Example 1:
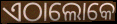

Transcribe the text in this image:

ଏଠାଲୋକେ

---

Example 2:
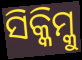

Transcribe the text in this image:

ସିକ୍କିମ୍କୁ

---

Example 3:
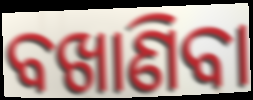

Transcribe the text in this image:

ବଖାଣିବା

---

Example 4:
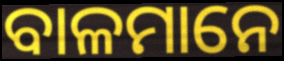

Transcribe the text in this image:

ବାଳମାନେ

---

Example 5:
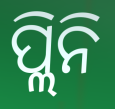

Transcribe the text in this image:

ପ୍ଲିନି